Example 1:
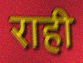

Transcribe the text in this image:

राही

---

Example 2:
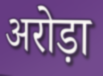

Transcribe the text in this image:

अरोड़ा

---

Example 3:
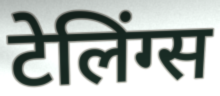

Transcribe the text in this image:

टेलिंग्स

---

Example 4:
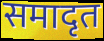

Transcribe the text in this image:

समादृत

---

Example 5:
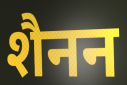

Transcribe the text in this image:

शैनन